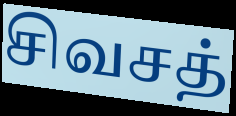
சிவசத்